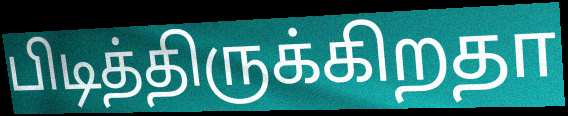
பிடித்திருக்கிறதா